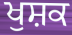
ਖੁਸ਼ਕ